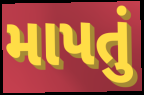
માપતું